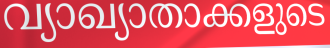
വ്യാഖ്യാതാക്കളുടെ